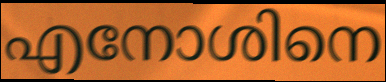
എനോശിനെ